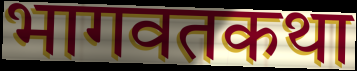
भागवतकथा